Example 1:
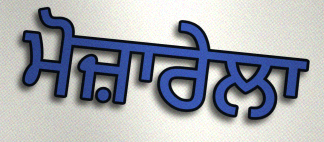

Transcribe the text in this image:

ਮੋਜ਼ਾਰੇਲਾ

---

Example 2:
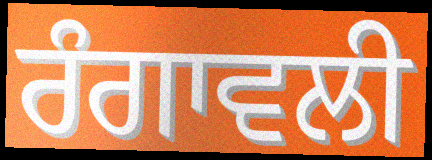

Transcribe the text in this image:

ਰੰਗਾਵਲੀ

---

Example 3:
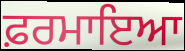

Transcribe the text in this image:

ਫ਼ਰਮਾਇਆ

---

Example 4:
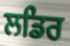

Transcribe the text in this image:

ਲਡਿਰ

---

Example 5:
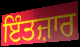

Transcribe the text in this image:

ਇੰਤਜ਼ਾਰ